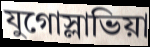
যুগোস্লাভিয়া